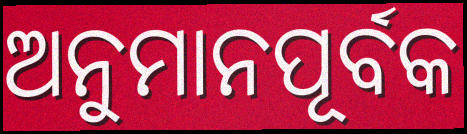
ଅନୁମାନପୂର୍ବକ